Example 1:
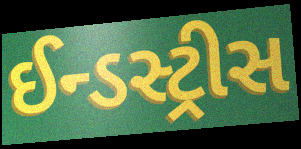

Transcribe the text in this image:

ઈન્ડસ્ટ્રીસ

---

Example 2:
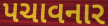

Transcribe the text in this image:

પચાવનાર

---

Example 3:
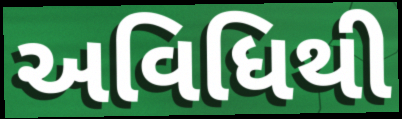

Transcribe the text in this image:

અવિધિથી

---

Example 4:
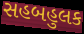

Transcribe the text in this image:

સહબહુલક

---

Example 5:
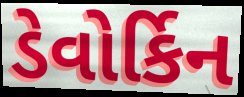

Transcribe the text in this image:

ડેવોર્કિન